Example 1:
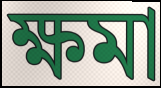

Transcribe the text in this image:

ক্ষমা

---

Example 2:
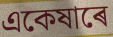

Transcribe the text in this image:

একেষাৰে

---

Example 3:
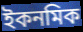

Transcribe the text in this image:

ইকনমিক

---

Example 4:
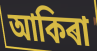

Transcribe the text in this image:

আকিৰা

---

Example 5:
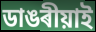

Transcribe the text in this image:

ডাঙৰীয়াই